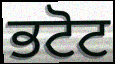
ਭਟੋਟ